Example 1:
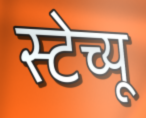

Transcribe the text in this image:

स्टेच्यू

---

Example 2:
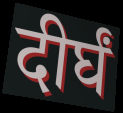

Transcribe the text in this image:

दीर्घं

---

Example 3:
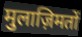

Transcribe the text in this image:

मुलाज़िमतों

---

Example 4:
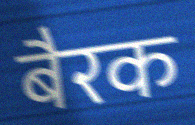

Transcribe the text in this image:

बैरक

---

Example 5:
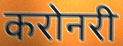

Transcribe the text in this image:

करोनरी